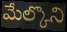
మేల్కొని